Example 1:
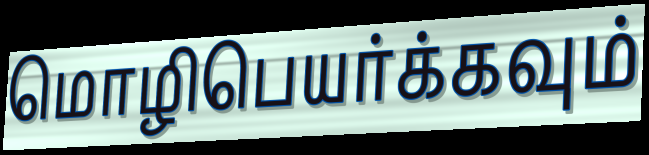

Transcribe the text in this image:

மொழிபெயர்க்கவும்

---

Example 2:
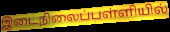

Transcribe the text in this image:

இடைநிலைப்பள்ளியில்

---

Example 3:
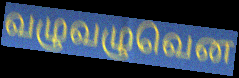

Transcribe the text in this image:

வழுவழுவென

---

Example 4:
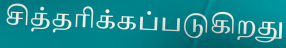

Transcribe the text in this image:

சித்தரிக்கப்படுகிறது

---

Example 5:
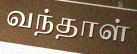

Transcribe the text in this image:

வந்தாள்